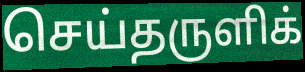
செய்தருளிக்